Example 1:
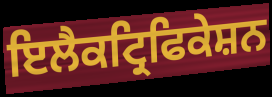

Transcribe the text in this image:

ਇਲੈਕਟ੍ਰਿਫਿਕੇਸ਼ਨ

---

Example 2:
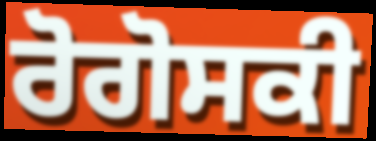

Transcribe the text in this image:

ਰੋਗੋਸਕੀ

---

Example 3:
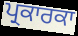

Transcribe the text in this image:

ਪ੍ਰਕਾਰਕਾ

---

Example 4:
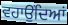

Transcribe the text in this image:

ਵਹਾਉਂਦਿਆਂ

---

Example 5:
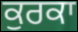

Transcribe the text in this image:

ਕੁਰਕਾ